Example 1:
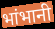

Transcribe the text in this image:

भांभानी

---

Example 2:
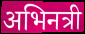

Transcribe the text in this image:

अभिनत्री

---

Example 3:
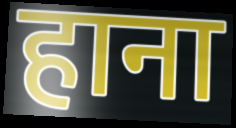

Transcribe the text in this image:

हाना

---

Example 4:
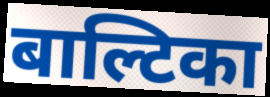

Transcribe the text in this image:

बाल्टिका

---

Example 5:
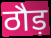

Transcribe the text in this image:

ठौड़